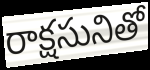
రాక్షసునితో